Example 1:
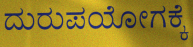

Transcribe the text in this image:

ದುರುಪಯೋಗಕ್ಕೆ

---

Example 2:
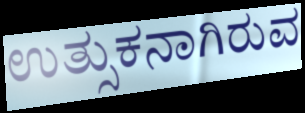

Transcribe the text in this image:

ಉತ್ಸುಕನಾಗಿರುವ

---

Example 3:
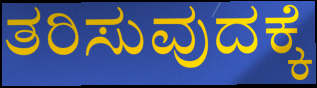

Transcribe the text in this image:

ತರಿಸುವುದಕ್ಕೆ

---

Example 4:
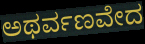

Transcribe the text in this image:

ಅಥರ್ವಣವೇದ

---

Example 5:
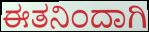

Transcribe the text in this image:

ಈತನಿಂದಾಗಿ